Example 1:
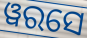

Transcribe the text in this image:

ୱରସେ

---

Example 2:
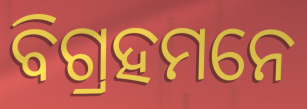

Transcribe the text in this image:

ବିଗ୍ରହମନେ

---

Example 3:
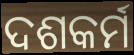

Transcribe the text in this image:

ଦଶକର୍ମ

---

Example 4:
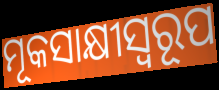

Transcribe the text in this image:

ମୂକସାକ୍ଷୀସ୍ୱରୂପ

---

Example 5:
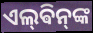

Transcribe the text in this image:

ଏଲ୍‌ଵିନ୍‌ଙ୍କ